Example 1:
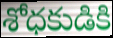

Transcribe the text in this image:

శోధకుడికి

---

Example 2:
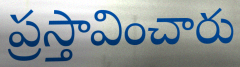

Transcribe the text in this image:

ప్రస్తావించారు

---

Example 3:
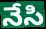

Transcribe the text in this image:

నేసి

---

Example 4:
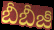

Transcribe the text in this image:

బీబీజీ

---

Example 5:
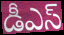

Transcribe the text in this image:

డీఎస్